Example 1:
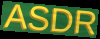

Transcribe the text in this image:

ASDR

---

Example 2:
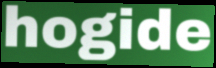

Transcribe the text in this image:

hogide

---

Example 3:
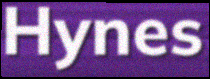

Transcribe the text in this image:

Hynes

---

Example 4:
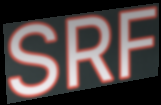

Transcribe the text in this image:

SRF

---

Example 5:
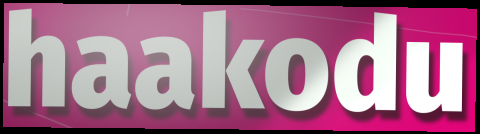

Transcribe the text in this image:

haakodu